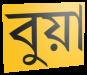
বুয়া